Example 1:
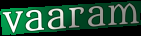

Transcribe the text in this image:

vaaram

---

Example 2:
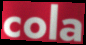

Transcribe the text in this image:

cola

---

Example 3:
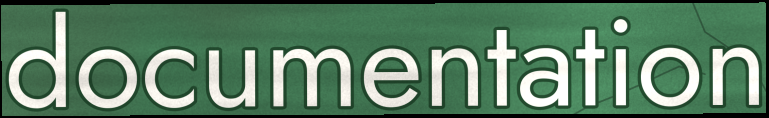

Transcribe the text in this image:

documentation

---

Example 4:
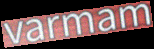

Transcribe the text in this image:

varmam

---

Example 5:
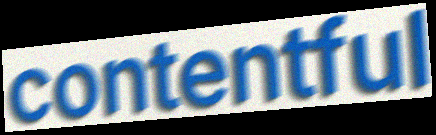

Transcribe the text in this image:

contentful